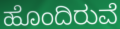
ಹೊಂದಿರುವೆ